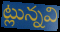
ట్లున్నవి